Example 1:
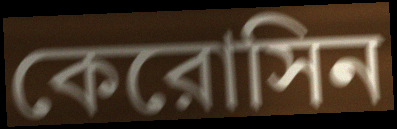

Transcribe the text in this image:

কেরোসিন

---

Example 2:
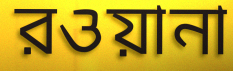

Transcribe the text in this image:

রওয়ানা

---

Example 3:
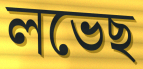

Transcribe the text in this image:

লভেছ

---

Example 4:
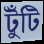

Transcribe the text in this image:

টুঁটি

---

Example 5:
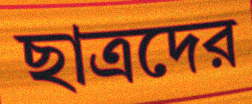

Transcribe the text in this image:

ছাত্রদের